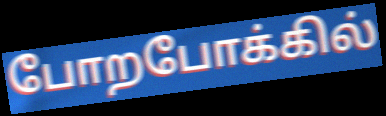
போறபோக்கில்